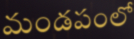
మండపంలో